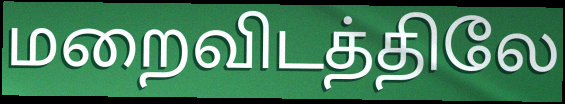
மறைவிடத்திலே